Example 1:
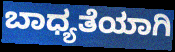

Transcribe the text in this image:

ಬಾಧ್ಯತೆಯಾಗಿ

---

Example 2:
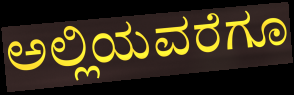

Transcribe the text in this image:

ಅಲ್ಲಿಯವರೆಗೂ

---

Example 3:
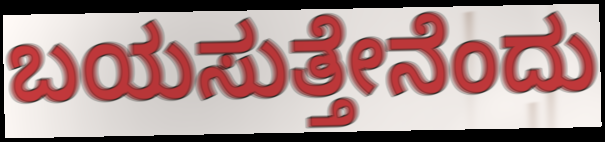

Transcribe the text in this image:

ಬಯಸುತ್ತೇನೆಂದು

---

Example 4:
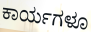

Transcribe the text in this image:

ಕಾರ್ಯಗಳೂ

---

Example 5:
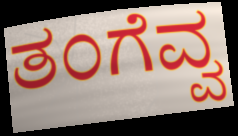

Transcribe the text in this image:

ತಂಗೆವ್ವ